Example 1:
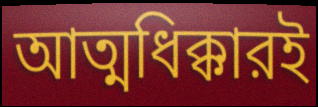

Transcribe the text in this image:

আত্মধিক্কারই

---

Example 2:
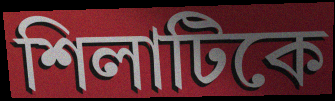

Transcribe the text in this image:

শিলাটিকে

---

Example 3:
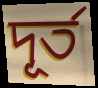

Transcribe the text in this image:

দূর্ত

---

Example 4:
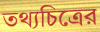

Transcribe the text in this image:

তথ্যচিত্রের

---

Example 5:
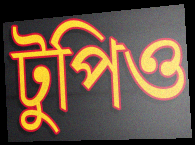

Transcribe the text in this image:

টুপিও